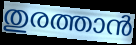
തുരത്താൻ